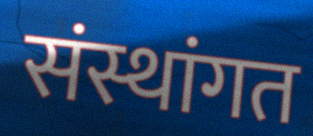
संस्थांगत